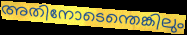
അതിനോടെന്തെങ്കിലും